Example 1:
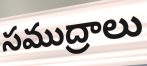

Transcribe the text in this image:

సముద్రాలు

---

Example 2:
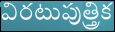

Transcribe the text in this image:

విరటుపుత్త్రిక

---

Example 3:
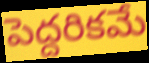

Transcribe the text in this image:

పెద్దరికమే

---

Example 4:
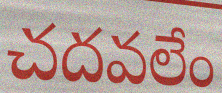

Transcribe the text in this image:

చదవలేం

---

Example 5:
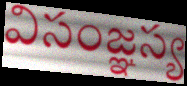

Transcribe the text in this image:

విసంజ్ఞస్య